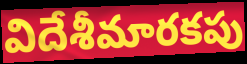
విదేశీమారకపు